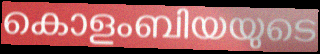
കൊളംബിയയുടെ